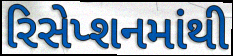
રિસેપ્શનમાંથી